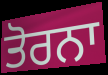
ਤੋਰਨਾ